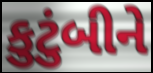
કુટુંબીને